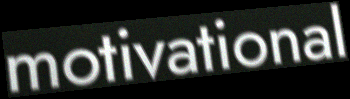
motivational